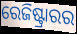
ରେଜିଷ୍ଟ୍ରାରର